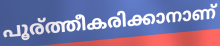
പൂര്ത്തീകരിക്കാനാണ്